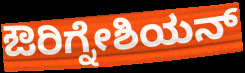
ಔರಿಗ್ನೇಶಿಯನ್